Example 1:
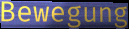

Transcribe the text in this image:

Bewegung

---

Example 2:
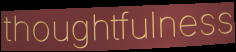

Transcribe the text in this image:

thoughtfulness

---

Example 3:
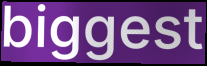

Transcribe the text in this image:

biggest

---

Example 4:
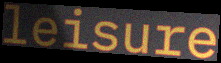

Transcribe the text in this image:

leisure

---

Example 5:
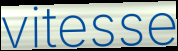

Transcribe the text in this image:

vitesse